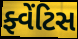
ફ્વેંટિસ